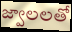
జ్వాలలతో